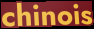
chinois